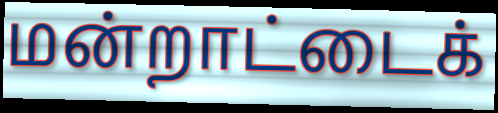
மன்றாட்டைக்